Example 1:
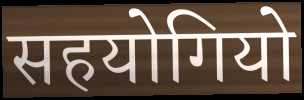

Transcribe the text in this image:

सहयोगियो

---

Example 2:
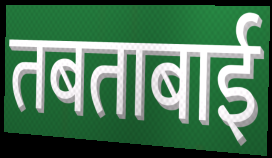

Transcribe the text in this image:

तबताबाई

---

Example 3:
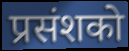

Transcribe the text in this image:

प्रसंशको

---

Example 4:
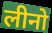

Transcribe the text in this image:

लीनो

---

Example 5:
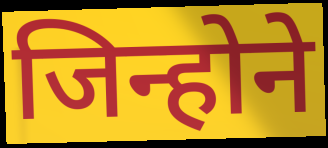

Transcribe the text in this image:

जिन्होने